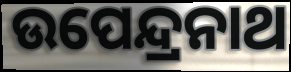
ଉପେନ୍ଦ୍ରନାଥ